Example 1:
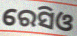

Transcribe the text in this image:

ରେସିଓ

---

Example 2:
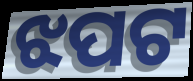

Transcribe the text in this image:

ଝପଟ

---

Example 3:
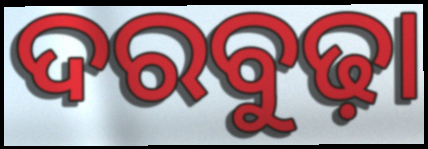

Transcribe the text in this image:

ଦରବୁଢ଼ା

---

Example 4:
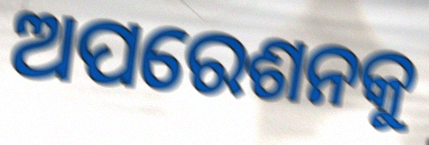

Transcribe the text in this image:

ଅପରେଶନକୁ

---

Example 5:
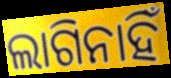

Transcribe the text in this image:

ଲାଗିନାହିଁ